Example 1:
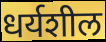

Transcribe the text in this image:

धर्यशील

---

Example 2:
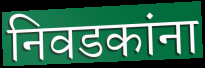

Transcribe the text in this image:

निवडकांना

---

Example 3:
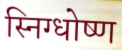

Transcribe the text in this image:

स्निग्धोष्ण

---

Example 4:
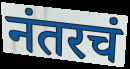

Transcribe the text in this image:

नंतरचं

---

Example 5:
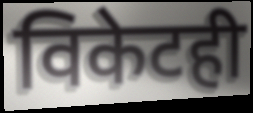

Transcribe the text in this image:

विकेटही